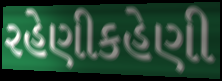
રહેણીકહેણી